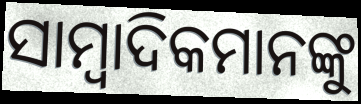
ସାମ୍ବାଦିକମାନଙ୍କୁ